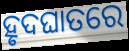
ହୃଦଘାତରେ